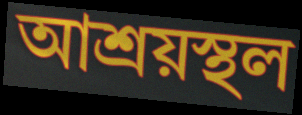
আশ্ৰয়স্থল